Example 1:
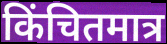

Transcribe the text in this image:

किंचितमात्र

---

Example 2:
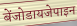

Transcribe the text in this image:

बेंजोडायजेपाइन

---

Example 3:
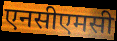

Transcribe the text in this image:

एनसीएमसी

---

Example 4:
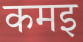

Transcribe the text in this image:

कमइ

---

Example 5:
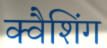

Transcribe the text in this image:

क्वैशिंग